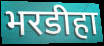
भरडीहा